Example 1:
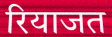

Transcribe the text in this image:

रियाजत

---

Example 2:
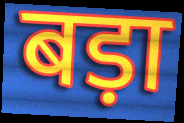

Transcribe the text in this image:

बड़ा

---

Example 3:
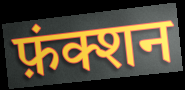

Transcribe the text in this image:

फ़ंक्शन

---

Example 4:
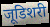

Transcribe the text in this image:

जूडिशरी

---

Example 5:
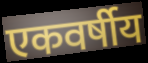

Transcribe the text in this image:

एकवर्षीय